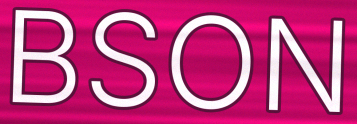
BSON